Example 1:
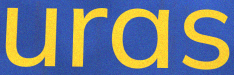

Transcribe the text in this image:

uras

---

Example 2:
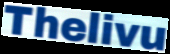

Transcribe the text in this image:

Thelivu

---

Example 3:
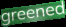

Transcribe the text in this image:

greened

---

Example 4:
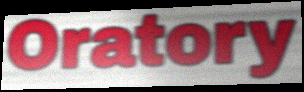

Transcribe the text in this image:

Oratory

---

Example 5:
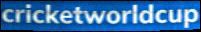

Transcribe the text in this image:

cricketworldcup